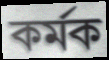
কৰ্মক